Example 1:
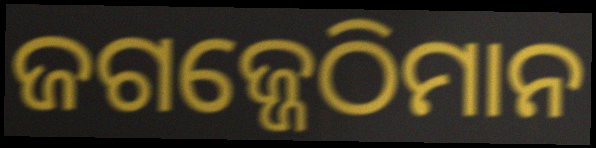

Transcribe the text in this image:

ଜଗଜ୍ଜେଠିମାନ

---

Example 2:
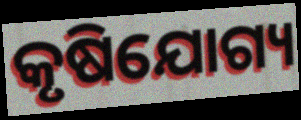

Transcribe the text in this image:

କୃଷିଯୋଗ୍ୟ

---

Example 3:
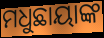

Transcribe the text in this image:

ମଧୁଛାୟାଙ୍କ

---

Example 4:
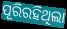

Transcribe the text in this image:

ପୂରିରହିଥିଲା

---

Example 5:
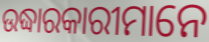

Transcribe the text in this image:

ଉଦ୍ଧାରକାରୀମାନେ